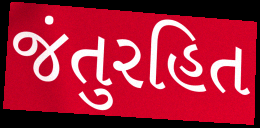
જંતુરહિત